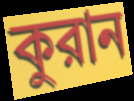
কুরান